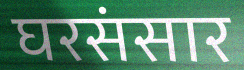
घरसंसार